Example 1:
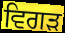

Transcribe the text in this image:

ਵਿਗੜ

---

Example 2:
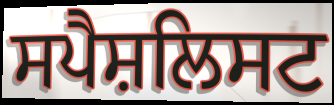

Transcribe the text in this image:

ਸਪੈਸ਼ਲਿਸਟ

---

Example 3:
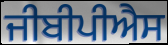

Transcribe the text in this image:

ਜੀਬੀਪੀਐਸ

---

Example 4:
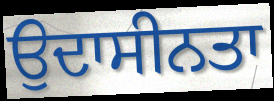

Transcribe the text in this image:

ਉਦਾਸੀਨਤਾ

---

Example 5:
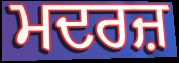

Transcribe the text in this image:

ਮਦਰਜ਼